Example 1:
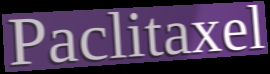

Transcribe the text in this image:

Paclitaxel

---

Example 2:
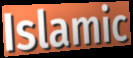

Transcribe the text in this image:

Islamic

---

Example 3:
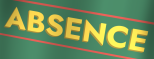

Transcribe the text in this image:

ABSENCE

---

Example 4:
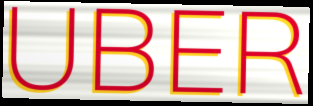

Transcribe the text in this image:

UBER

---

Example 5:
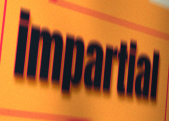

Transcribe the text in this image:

impartial